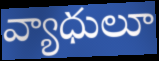
వ్యాధులూ